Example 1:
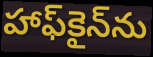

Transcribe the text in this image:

హాఫ్‌కైన్‌ను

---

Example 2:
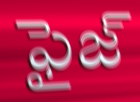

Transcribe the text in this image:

ఫైజ్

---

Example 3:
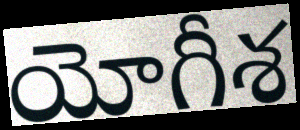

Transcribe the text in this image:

యోగీశ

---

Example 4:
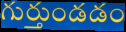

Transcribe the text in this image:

గుర్తుండడం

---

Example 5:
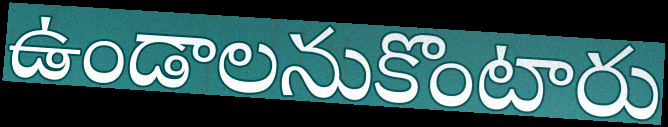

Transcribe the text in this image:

ఉండాలనుకొంటారు